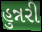
હુન્નરી